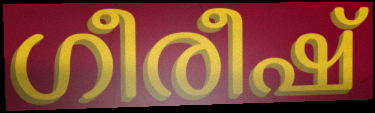
ഗീരീഷ്